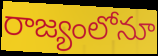
రాజ్యంలోనూ